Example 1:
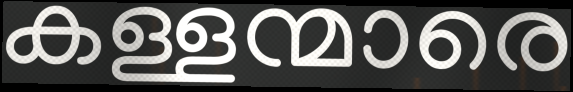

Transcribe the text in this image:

കള്ളന്മാരെ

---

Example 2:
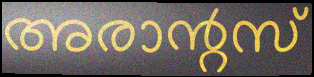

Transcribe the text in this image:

അരാന്റസ്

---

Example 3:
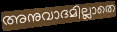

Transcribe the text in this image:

അനുവാദമില്ലാതെ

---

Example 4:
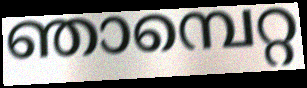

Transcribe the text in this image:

ഞാമ്പെറ്റ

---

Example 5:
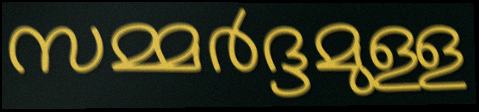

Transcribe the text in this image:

സമ്മർദ്ദമുള്ള